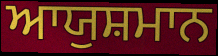
ਆਯੁਸ਼ਮਾਨ